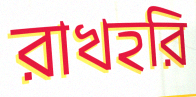
রাখহরি